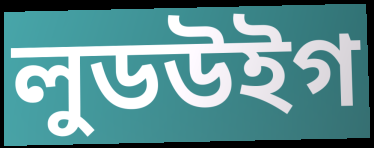
লুডউইগ